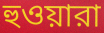
হুওয়ারা